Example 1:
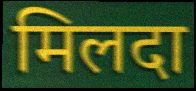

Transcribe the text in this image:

मिलदा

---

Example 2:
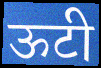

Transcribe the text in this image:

ऊटी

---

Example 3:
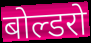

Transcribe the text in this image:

बोल्डरो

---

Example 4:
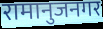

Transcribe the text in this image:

रामानुजनगर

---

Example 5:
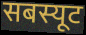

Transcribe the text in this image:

सबस्यूट